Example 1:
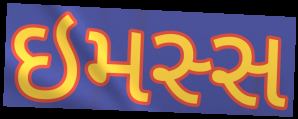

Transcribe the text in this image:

ઇમસ્સ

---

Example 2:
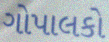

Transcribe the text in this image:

ગોપાલકો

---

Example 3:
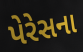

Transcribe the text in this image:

પેરેસના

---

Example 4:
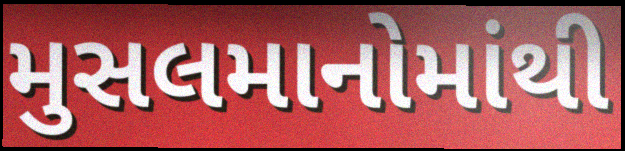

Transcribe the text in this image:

મુસલમાનોમાંથી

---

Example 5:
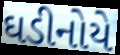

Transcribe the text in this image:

ઘડીનોયે